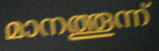
മാനത്തൂന്ന്